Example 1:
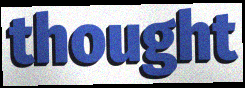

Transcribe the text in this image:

thought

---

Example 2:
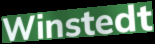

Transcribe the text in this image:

Winstedt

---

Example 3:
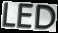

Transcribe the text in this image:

LED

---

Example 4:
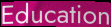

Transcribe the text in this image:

Education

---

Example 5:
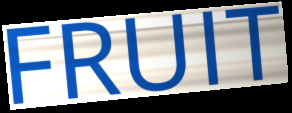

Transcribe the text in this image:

FRUIT